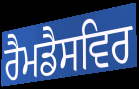
ਰੈਮਡੈਸਵਿਰ